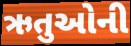
ઋતુઓની